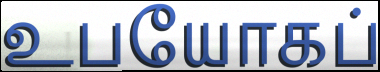
உபயோகப்